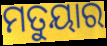
ମତୁୟାର